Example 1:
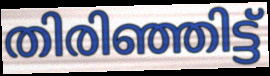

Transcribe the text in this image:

തിരിഞ്ഞിട്ട്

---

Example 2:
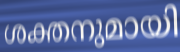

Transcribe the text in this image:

ശക്തനുമായി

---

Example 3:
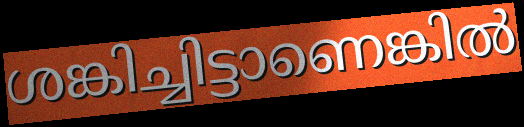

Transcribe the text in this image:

ശങ്കിച്ചിട്ടാണെങ്കിൽ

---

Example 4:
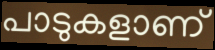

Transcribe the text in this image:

പാടുകളാണ്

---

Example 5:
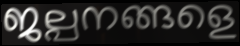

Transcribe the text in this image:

ജല്പനങ്ങളെ